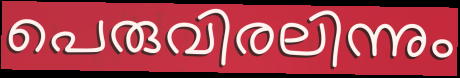
പെരുവിരലിന്നും